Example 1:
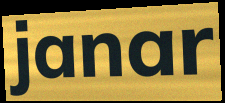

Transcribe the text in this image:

janar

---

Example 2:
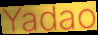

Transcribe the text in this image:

Yadao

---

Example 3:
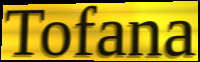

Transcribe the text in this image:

Tofana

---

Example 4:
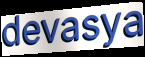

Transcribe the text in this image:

devasya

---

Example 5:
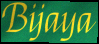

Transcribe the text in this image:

Bijaya